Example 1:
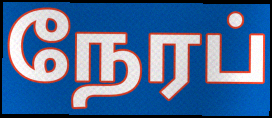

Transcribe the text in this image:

நேரப்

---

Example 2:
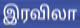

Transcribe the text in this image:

இரவிலா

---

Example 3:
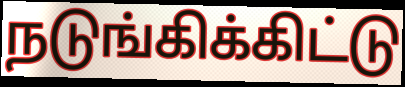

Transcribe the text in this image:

நடுங்கிக்கிட்டு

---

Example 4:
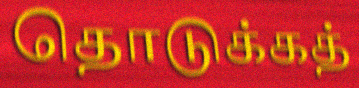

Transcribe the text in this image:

தொடுக்கத்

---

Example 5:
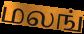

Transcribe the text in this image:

மலங்